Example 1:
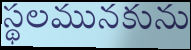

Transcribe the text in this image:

స్థలమునకును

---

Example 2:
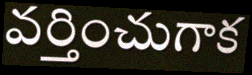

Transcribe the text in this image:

వర్తించుగాక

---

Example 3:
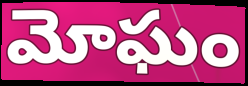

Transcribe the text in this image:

మోఘం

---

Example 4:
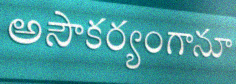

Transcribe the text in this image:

అసౌకర్యంగానూ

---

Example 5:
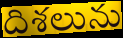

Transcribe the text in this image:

దిశలును